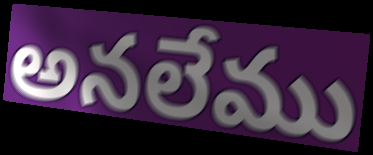
అనలేము